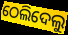
ଠେଲିଦେଲୁ